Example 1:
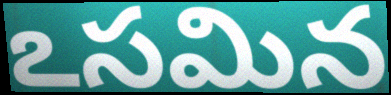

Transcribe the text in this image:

ఽసమిన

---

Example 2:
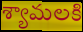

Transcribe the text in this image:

శ్యామలకి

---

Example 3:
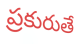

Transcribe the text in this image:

ప్రకురుతే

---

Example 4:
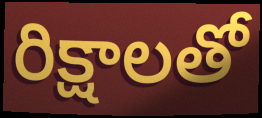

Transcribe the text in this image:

రిక్షాలతో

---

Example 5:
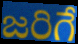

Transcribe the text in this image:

జరిగే